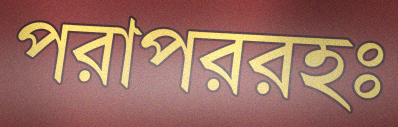
পরাপররহঃ